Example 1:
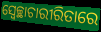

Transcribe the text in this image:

ସ୍ଵେଚ୍ଛାଚାରୀରିତାରେ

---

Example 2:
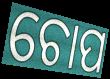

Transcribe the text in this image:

ଚୋପ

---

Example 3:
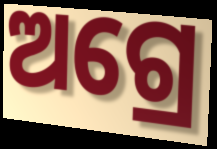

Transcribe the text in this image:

ଅଗ୍ରେ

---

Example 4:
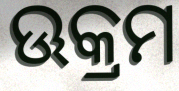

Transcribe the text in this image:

ଊକ୍ରମ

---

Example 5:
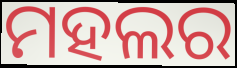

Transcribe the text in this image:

ମହଲର